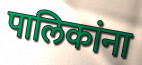
पालिकांना